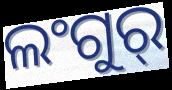
ଲଂଗୁର୍